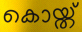
കൊയ്ത്